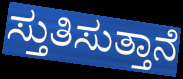
ಸ್ತುತಿಸುತ್ತಾನೆ